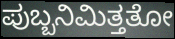
ಪುಬ್ಬನಿಮಿತ್ತತೋ